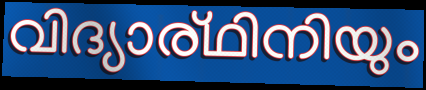
വിദ്യാര്ഥിനിയും